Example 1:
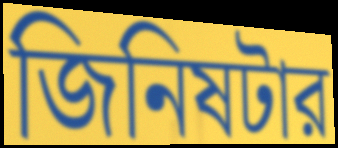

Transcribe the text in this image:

জিনিষটার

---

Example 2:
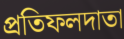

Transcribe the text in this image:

প্রতিফলদাতা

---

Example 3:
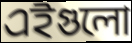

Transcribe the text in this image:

এইগুলো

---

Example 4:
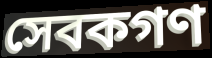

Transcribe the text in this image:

সেবকগণ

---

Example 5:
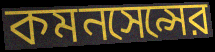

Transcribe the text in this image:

কমনসেন্সের